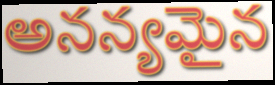
అనన్యమైన